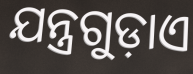
ଯନ୍ତ୍ରଗୁଡ଼ାଏ